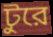
টুরে